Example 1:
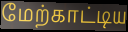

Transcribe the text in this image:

மேற்காட்டிய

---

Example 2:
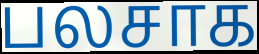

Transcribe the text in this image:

பலசாக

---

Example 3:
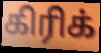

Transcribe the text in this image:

கிரிக்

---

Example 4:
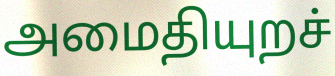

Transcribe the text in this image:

அமைதியுறச்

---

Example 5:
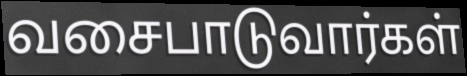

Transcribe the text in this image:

வசைபாடுவார்கள்